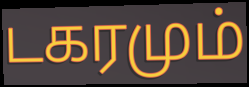
டகரமும்